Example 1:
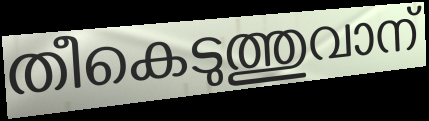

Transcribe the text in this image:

തീകെടുത്തുവാന്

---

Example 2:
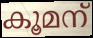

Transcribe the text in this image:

കൂമന്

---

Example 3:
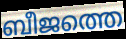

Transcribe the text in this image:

ബീജത്തെ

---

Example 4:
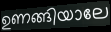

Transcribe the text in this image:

ഉണങ്ങിയാലേ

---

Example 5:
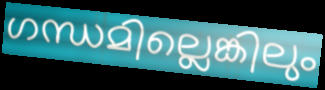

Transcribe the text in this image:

ഗന്ധമില്ലെങ്കിലും